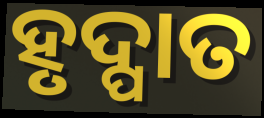
ହୃଦ୍ପାତ